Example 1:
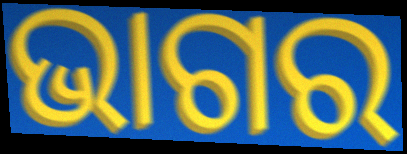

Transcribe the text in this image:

ଭାଗର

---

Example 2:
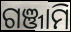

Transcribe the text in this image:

ଗଞ୍ଜାମି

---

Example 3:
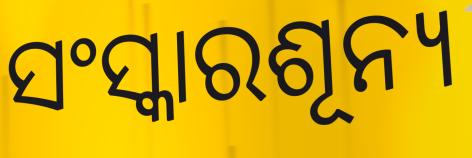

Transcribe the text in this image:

ସଂସ୍କାରଶୂନ୍ୟ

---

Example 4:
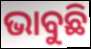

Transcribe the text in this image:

ଭାବୁଛି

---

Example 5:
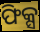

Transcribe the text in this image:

ଫିକ୍ସ